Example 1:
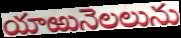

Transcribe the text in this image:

యాఱునెలలును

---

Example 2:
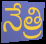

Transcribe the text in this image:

నేత్రి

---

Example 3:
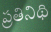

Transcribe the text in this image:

ప్రతినిథి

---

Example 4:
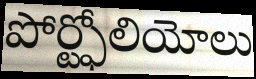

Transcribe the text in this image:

పోర్ట్ఫోలియోలు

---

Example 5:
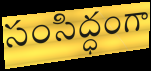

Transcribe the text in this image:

సంసిద్ధంగా